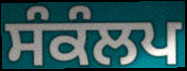
ਸੰਕੰਲਪ